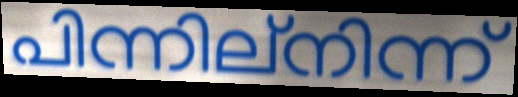
പിന്നില്നിന്ന്